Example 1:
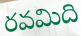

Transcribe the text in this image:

రవమిది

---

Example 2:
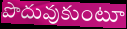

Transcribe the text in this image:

పొదువుకుంటూ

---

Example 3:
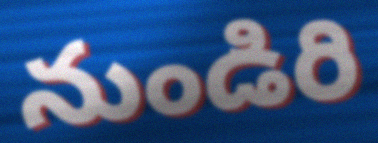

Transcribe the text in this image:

నుండిరి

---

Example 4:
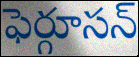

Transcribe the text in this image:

ఫెర్గూసన్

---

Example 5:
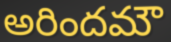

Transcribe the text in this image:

అరిందమౌ